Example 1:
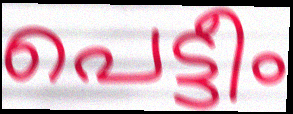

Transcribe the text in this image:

പെട്ടീം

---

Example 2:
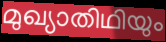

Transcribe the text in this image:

മുഖ്യാതിഥിയും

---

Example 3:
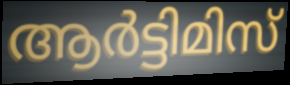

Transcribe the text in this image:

ആർട്ടിമിസ്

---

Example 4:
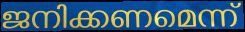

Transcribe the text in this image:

ജനിക്കണമെന്ന്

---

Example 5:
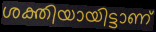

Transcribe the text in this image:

ശക്തിയായിട്ടാണ്